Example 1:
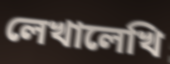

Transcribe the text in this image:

লেখালেখি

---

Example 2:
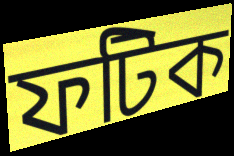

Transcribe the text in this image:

ফটিক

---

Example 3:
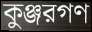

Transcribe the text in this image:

কুঞ্জরগণ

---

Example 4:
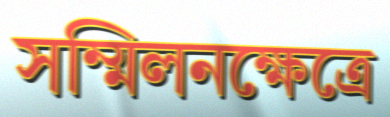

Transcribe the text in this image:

সম্মিলনক্ষেত্রে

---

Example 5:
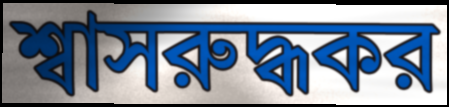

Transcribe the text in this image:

শ্বাসরুদ্ধকর